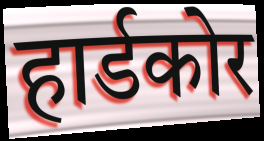
हार्डकोर